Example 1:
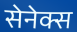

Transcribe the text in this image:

सेनेक्स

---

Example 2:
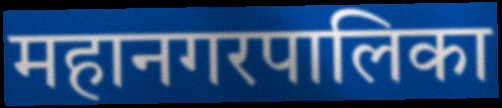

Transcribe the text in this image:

महानगरपालिका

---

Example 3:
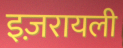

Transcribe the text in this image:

इज़रायली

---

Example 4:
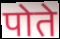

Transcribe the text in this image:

पोते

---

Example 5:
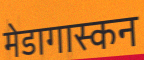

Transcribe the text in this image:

मेडागास्कन